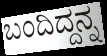
ಬಂದಿದ್ದನ್ನ